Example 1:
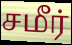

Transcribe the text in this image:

சமீர்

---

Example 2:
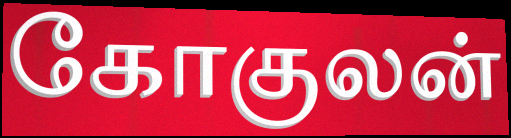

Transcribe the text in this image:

கோகுலன்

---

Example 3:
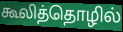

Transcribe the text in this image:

கூலித்தொழில்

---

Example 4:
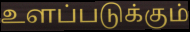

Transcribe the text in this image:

உளப்படுக்கும்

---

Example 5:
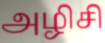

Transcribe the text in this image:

அழிசி